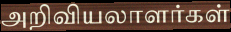
அறிவியலாளர்கள்